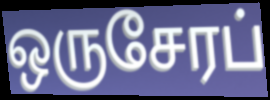
ஒருசேரப்